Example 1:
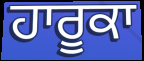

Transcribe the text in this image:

ਹਾਰੂਕਾ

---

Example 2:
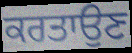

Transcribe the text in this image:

ਕਰਤਾਉਣ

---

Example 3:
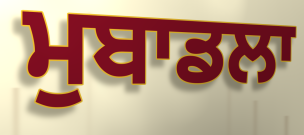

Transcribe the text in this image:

ਮੁਬਾਡਲਾ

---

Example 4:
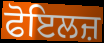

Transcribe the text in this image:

ਫੋਇਲਜ਼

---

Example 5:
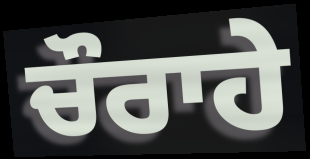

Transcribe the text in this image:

ਚੌਰਾਹੇ